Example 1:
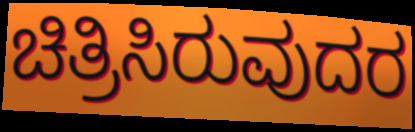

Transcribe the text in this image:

ಚಿತ್ರಿಸಿರುವುದರ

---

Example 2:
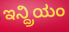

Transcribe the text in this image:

ಇನ್ದ್ರಿಯಂ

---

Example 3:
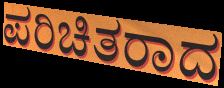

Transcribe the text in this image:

ಪರಿಚಿತರಾದ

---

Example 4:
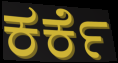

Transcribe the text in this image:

ಕರ್ಕೆ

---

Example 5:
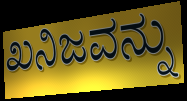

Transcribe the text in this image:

ಖನಿಜವನ್ನು